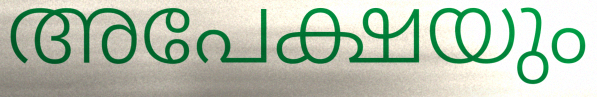
അപേക്ഷയും